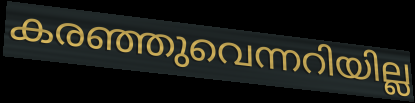
കരഞ്ഞുവെന്നറിയില്ല